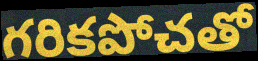
గరికపోచతో